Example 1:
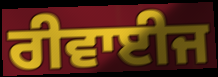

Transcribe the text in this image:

ਰੀਵਾਈਜ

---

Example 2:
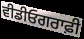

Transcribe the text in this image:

ਵੀਡੀਓਗਰਾਫ਼ੀ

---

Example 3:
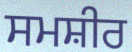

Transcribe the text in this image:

ਸਮਸ਼ੀਰ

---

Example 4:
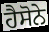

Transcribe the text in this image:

ਹੈਸੋਨੇ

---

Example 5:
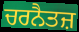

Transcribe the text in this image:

ਚਰਨੈਤਜ਼